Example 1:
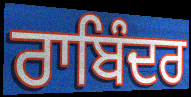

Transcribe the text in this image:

ਰਾਬਿੰਦਰ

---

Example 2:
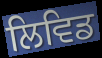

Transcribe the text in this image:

ਲਿਵਿਡ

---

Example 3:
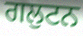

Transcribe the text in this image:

ਗਲੁਟਨ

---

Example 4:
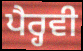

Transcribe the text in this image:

ਪੈਰ੍ਹਵੀ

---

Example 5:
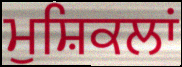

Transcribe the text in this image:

ਮੁਸ਼ਿਕਲਾਂ